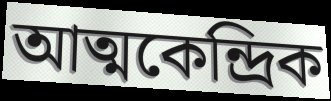
আত্মকেন্দ্রিক